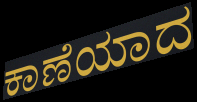
ಕಾಣೆಯಾದ